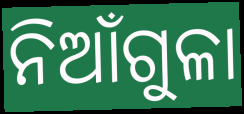
ନିଆଁଗୁଳା